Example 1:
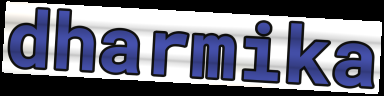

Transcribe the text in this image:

dharmika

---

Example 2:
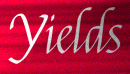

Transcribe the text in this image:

Yields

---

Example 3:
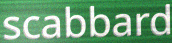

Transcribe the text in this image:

scabbard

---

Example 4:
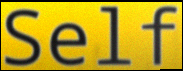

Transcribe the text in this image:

Self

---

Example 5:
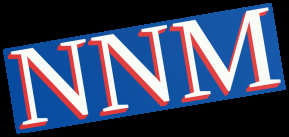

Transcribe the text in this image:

NNM